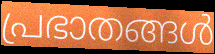
പ്രഭാതങ്ങൾ